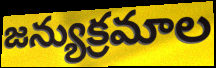
జన్యుక్రమాల